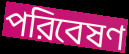
পরিবেষণ